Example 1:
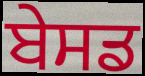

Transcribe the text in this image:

ਬੇਸਡ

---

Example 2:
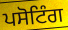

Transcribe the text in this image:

ਪਸੋਟਿੰਗ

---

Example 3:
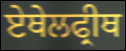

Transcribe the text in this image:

ਏਥੇਲਫ੍ਰੀਥ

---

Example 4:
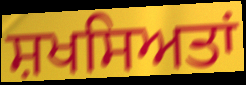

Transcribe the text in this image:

ਸ਼ਖਸਿਅਤਾਂ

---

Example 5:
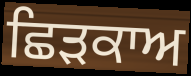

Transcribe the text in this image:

ਛਿੜਕਾਅ